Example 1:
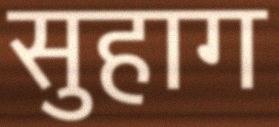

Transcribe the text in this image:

सुहाग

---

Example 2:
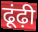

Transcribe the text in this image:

ढूंढ़ी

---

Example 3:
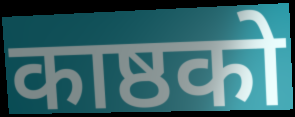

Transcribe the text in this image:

काष्ठको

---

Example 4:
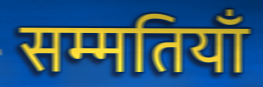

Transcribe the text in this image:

सम्मतियाँ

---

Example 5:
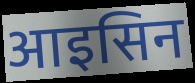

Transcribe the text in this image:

आइसिन